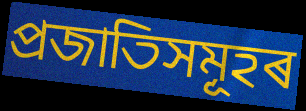
প্ৰজাতিসমূহৰ